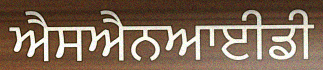
ਐਸਐਨਆਈਡੀ